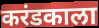
करंडकाला